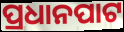
ପ୍ରଧାନପାଟ